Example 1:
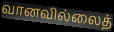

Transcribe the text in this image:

வானவில்லைத்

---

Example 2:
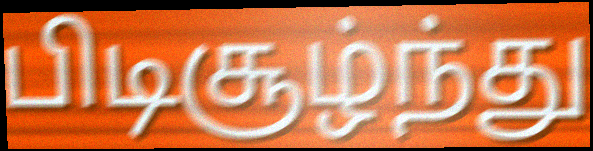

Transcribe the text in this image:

பிடிசூழ்ந்து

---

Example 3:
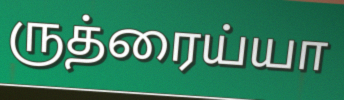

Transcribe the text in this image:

ருத்ரைய்யா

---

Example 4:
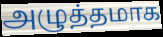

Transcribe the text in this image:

அழுத்தமாக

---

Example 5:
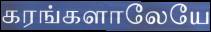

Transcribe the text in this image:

கரங்களாலேயே